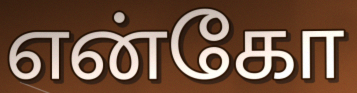
என்கோ